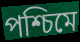
পশ্চিমে